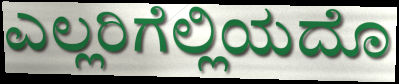
ಎಲ್ಲರಿಗೆಲ್ಲಿಯದೊ